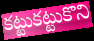
కట్టుకట్టుకొని